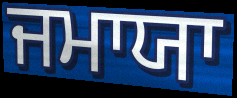
ਜਮਾਯਾ